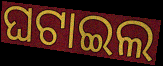
ଘଟାଇଲ